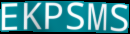
EKPSMS